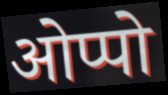
ओप्पो